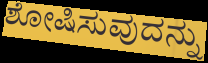
ಶೋಷಿಸುವುದನ್ನು